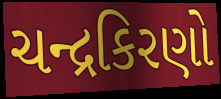
ચન્દ્રકિરણો